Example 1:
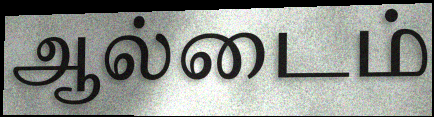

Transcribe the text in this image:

ஆல்டைம்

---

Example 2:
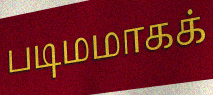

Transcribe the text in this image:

படிமமாகக்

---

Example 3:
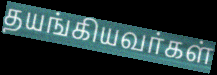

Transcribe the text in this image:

தயங்கியவர்கள்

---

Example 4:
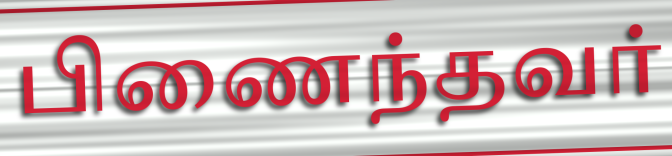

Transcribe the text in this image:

பிணைந்தவர்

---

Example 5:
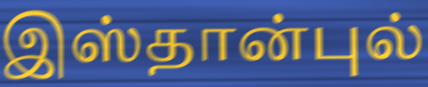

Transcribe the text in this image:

இஸ்தான்புல்